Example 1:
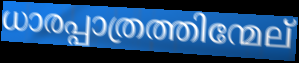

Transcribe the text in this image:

ധാരപ്പാത്രത്തിന്മേല്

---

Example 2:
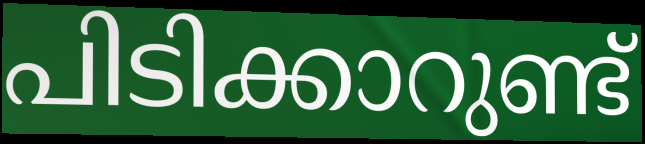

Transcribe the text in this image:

പിടിക്കാറുണ്ട്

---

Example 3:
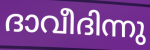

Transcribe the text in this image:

ദാവീദിന്നു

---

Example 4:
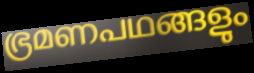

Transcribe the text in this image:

ഭ്രമണപഥങ്ങളും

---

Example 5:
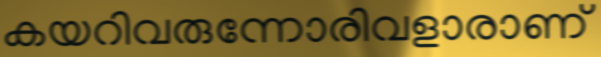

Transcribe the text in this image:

കയറിവരുന്നോരിവളാരാണ്